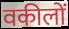
वकीलों